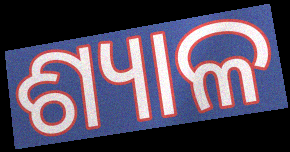
ଶ୍ୟାଳ